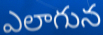
ఎలాగున